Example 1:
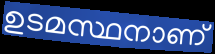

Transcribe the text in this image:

ഉടമസ്ഥനാണ്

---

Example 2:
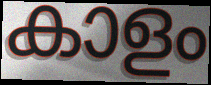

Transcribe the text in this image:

കാളം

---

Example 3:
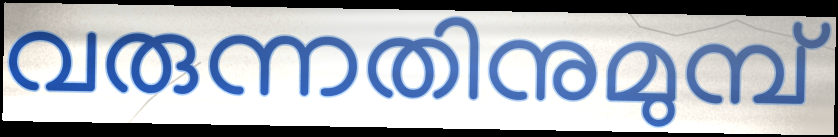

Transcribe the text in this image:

വരുന്നതിനുമുമ്പ്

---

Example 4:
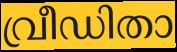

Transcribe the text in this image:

വ്രീഡിതാ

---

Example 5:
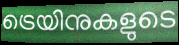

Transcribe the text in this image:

ട്രെയിനുകളുടെ